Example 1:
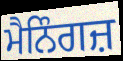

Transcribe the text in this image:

ਮੈਨਿੰਗਜ਼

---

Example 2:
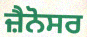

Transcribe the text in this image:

ਜ਼ੈਨੋਸਰ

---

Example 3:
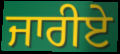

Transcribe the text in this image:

ਜਾਰੀਏ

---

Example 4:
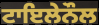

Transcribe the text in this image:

ਟਾਇਲੇਨੌਲ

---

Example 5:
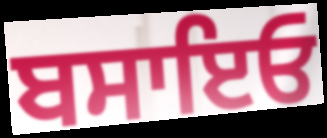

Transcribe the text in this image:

ਬਸਾਇਓ